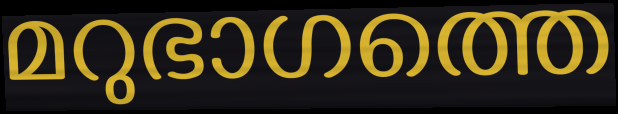
മറുഭാഗത്തെ